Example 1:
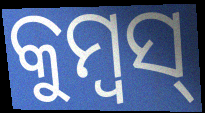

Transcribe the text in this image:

କୁମ୍ବସ୍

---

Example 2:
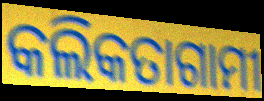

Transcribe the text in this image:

କଲିକତାଗାମୀ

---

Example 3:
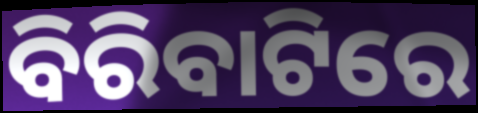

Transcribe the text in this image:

ବିରିବାଟିରେ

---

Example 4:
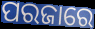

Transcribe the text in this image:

ପରଜାରେ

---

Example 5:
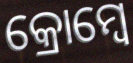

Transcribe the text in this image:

କ୍ରୋମ୍ବେ